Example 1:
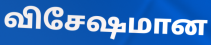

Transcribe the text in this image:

விசேஷமான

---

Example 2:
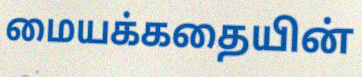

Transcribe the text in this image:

மையக்கதையின்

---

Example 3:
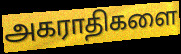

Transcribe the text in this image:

அகராதிகளை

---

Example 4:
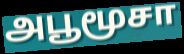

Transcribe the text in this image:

அபூமூசா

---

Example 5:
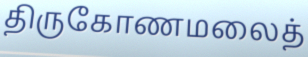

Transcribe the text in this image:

திருகோணமலைத்